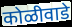
कोळीवाडे